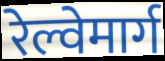
रेल्वेमार्ग